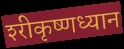
श्रीकृष्णध्यान